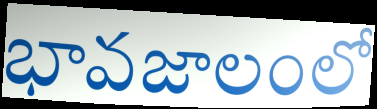
భావజాలంలో